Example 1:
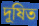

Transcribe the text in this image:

দূষিত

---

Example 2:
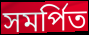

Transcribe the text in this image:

সমর্পিত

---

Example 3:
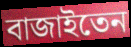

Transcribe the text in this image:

বাজাইতেন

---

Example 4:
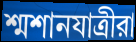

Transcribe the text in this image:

শ্মশানযাত্রীরা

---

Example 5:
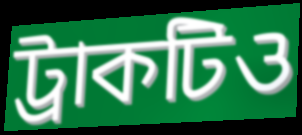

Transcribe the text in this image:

ট্রাকটিও